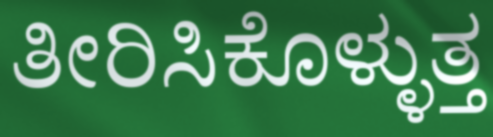
ತೀರಿಸಿಕೊಳ್ಳುತ್ತ